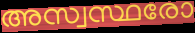
അസ്വസ്ഥരോ